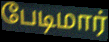
பேடிமார்